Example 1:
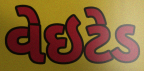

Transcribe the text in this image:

વેઇટેડ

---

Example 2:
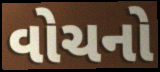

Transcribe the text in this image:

વોચનો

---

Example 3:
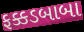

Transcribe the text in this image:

ફક્કડબાબા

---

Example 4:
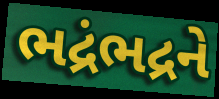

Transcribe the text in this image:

ભદ્રંભદ્રને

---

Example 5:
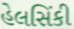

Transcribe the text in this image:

હેલસિંકી